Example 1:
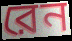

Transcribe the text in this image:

রেন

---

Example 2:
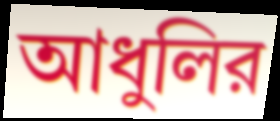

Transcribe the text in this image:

আধুলির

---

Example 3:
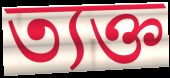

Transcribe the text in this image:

ত্যক্ত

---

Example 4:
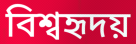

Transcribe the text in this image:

বিশ্বহৃদয়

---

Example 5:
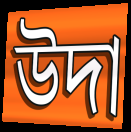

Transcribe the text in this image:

উদা